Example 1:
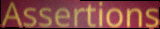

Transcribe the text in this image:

Assertions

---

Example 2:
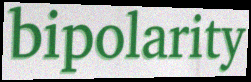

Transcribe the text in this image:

bipolarity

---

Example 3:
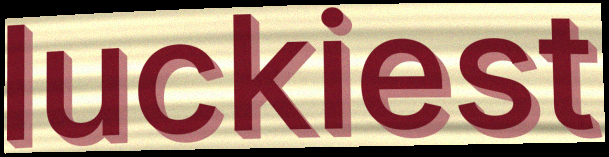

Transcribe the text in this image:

luckiest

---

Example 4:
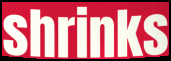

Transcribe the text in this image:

shrinks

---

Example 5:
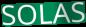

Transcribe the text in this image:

SOLAS